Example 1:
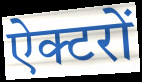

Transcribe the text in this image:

ऐक्टरों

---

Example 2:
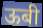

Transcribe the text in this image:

ऊबी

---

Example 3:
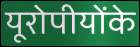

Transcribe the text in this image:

यूरोपीयोंके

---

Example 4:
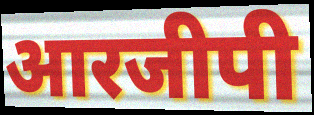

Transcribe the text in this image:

आरजीपी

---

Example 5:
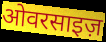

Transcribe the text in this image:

ओवरसाइज़